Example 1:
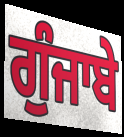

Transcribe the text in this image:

ਗੁੰਜਾਬੇ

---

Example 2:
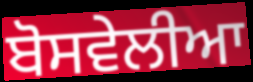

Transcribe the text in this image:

ਬੋਸਵੇਲੀਆ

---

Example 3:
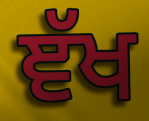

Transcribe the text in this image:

ਞੱਖ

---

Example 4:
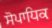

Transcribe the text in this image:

ਸੋਪਾਧਿਕ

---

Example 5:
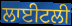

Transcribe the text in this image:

ਲਾਈਟਲੀ